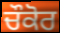
ਚੌਕੋਰ